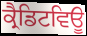
ਕ੍ਰੈਡਿਟਵਿਊ